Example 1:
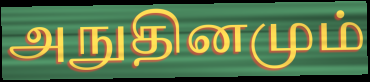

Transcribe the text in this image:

அநுதினமும்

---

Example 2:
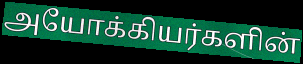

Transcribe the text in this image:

அயோக்கியர்களின்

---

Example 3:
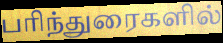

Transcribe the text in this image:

பரிந்துரைகளில்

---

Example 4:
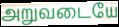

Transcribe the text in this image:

அறுவடையே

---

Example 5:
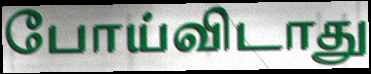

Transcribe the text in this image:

போய்விடாது